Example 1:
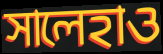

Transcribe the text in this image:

সালেহাও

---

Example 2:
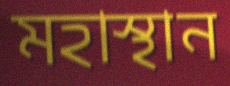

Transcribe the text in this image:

মহাস্থান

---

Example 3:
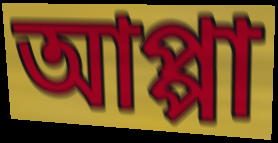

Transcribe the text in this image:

আপ্পা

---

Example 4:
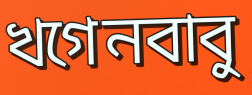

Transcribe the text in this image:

খগেনবাবু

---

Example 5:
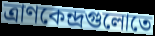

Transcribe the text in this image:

ত্রাণকেন্দ্রগুলোতে